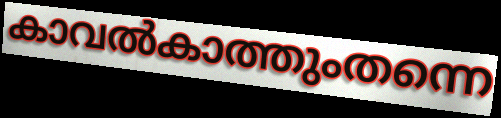
കാവൽകാത്തുംതന്നെ